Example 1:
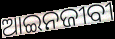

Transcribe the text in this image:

ଆଇନଜୀବୀ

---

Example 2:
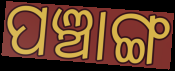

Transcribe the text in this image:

ପଞ୍ଚାଙ୍ଗ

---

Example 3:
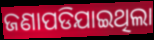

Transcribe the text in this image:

ଜଣାପଡିଯାଇଥିଲା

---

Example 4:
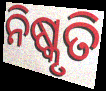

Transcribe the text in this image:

ନିଷ୍କୃତି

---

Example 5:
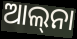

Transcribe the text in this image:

ଆଲ୍‍ନା